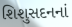
શિશુસદનનાં